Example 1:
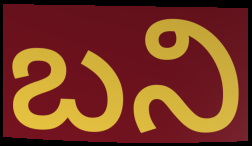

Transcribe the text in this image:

బని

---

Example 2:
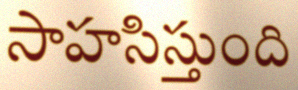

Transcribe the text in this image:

సాహసిస్తుంది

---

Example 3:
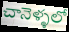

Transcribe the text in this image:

చానెళ్ళలో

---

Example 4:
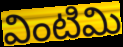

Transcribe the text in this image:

వింటిమి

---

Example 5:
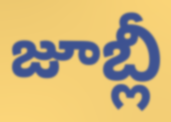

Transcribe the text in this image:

జూబ్లీ